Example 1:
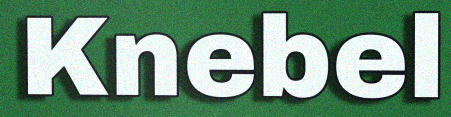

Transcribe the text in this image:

Knebel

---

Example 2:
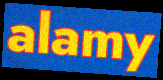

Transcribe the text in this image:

alamy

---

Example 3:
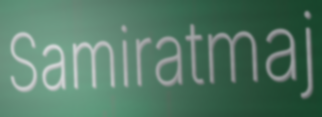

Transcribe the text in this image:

Samiratmaj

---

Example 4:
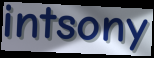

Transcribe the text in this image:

intsony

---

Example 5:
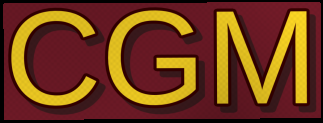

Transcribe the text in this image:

CGM